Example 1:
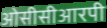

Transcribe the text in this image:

ओसीसीआरपी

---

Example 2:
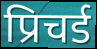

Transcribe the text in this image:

प्रिचर्ड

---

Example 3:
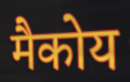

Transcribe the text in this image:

मैकोय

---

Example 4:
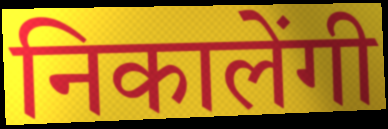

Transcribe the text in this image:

निकालेंगी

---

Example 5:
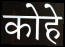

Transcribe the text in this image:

कोहे